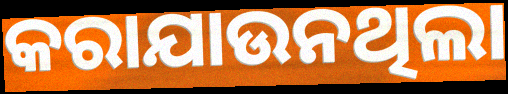
କରାଯାଉନଥିଲା